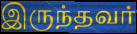
இருந்தவர்